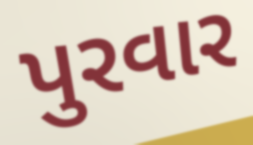
પુરવાર